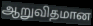
ஆறுவிதமான